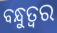
ବନ୍ଧୁତ୍ବର